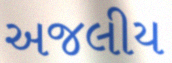
અજલીય